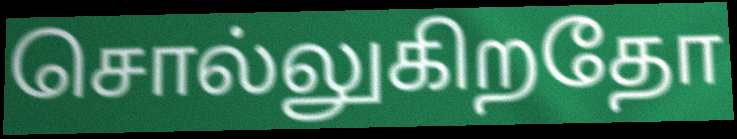
சொல்லுகிறதோ